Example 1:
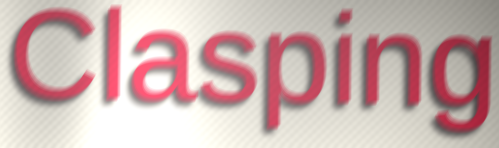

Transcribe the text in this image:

Clasping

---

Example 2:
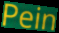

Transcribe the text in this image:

Pein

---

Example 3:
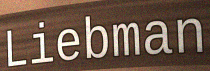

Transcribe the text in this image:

Liebman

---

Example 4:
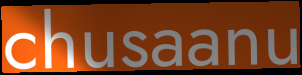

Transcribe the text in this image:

chusaanu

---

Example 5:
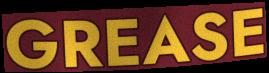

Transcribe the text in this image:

GREASE